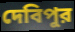
দেবিপুর